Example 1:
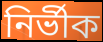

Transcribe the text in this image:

নিৰ্ভীক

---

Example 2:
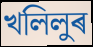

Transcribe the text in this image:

খলিলুৰ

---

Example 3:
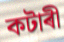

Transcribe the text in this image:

কটাৰী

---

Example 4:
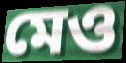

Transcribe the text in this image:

মেও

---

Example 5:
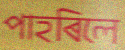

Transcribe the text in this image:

পাহৰিলে